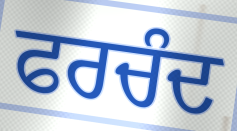
ਫਰਚੰਦ